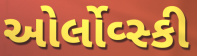
ઓર્લોવ્સ્કી